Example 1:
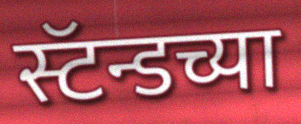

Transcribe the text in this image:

स्टॅन्डच्या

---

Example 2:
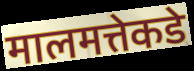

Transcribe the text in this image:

मालमत्तेकडे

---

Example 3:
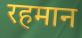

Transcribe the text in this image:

रहमान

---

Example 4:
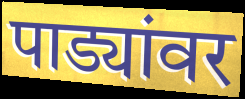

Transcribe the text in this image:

पाड्यांवर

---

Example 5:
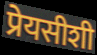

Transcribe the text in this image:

प्रेयसीशी